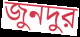
জুনদুর